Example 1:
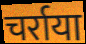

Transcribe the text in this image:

चर्राया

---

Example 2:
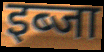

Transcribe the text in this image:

इब्जा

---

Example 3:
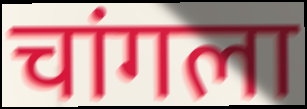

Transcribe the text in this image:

चांगला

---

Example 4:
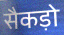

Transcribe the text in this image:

सैकड़ो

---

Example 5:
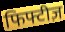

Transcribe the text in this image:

फिफ्टीज़